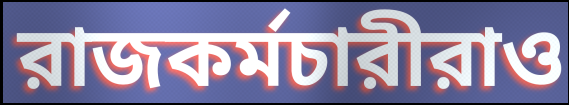
রাজকর্মচারীরাও